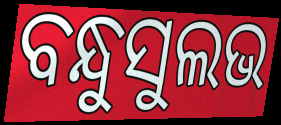
ବନ୍ଧୁସୁଲଭ